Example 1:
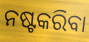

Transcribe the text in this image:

ନଷ୍ଟକରିବା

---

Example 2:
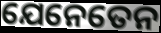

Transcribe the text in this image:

ଯେନେତେନ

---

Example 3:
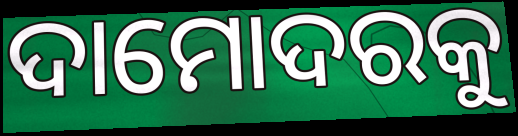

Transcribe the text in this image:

ଦାମୋଦରକୁ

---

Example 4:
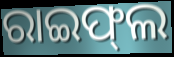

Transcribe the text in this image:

ରାଇଫ୍‌ଲ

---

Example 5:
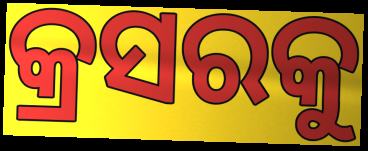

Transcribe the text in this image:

କ୍ରସରକୁ